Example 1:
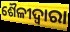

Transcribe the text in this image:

ଶୈଳୀଦ୍ୱାରା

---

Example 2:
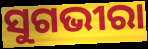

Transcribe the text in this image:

ସୁଗଭୀରା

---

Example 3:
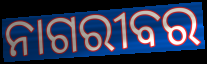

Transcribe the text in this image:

ନାଗରୀବର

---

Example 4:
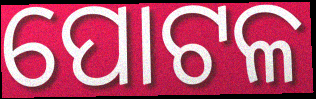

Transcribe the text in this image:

ପୋଟଳ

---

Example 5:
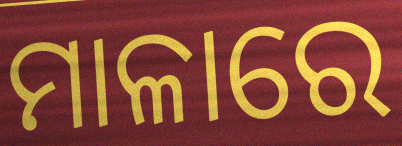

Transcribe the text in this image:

ମାଳାରେ